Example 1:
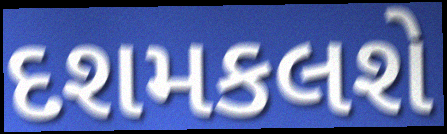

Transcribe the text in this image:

દશમકલશે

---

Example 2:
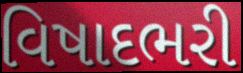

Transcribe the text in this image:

વિષાદભરી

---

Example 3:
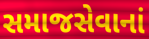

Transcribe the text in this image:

સમાજસેવાનાં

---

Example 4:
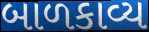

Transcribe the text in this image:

બાળકાવ્ય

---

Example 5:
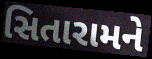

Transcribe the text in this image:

સિતારામને